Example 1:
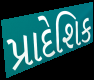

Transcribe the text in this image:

પ્રાદેશિક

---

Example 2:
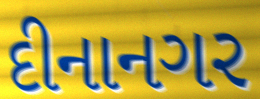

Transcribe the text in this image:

દીનાનગર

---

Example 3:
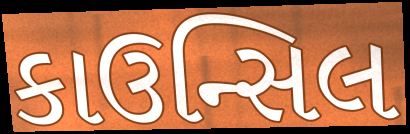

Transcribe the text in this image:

કાઉન્સિલ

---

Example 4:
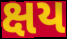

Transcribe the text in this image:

ક્ષય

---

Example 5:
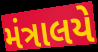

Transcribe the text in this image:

મંત્રાલયે